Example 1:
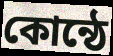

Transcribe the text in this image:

কোন্ঠে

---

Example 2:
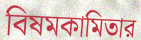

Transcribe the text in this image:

বিষমকামিতার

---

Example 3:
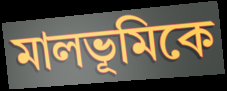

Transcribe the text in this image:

মালভূমিকে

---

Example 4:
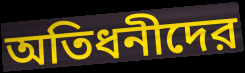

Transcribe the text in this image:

অতিধনীদের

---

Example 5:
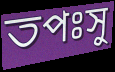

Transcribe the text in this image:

তপঃসু